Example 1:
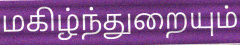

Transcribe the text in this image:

மகிழ்ந்துறையும்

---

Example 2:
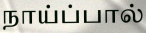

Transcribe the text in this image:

நாய்ப்பால்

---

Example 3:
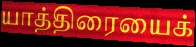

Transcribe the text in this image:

யாத்திரையைக்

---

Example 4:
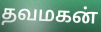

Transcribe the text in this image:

தவமகன்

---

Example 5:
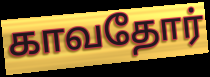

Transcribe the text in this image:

காவதோர்